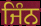
ਜਿੰਨ